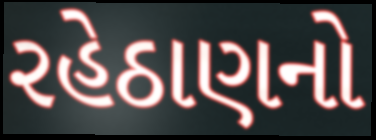
રહેઠાણનો